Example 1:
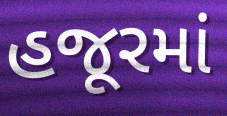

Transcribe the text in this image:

હજૂરમાં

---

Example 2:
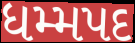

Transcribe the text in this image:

ધમ્મપદ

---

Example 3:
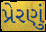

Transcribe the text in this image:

પ્રેરણું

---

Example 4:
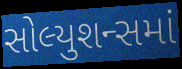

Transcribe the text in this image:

સોલ્યુશન્સમાં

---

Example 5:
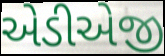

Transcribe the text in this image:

એડીએજી